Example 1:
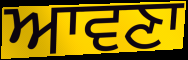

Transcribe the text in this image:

ਆਵਣਾ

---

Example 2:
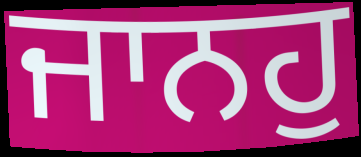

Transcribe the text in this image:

ਜਾਨਹੁ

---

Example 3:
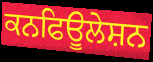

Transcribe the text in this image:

ਕਨਫਿਊਲੇਸ਼ਨ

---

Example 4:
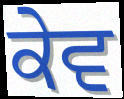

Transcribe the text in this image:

ਕੇਵ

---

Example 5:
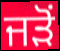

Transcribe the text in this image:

ਜਡ਼ੋਂ